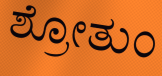
ಶ್ರೋತುಂ